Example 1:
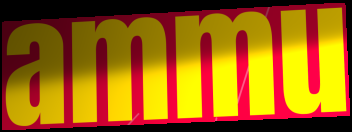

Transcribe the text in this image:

ammu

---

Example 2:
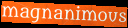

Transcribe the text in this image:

magnanimous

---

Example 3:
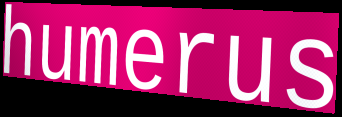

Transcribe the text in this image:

humerus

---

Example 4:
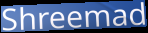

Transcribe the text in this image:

Shreemad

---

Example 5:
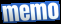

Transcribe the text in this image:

memo